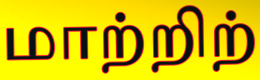
மாற்றிற்